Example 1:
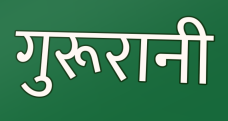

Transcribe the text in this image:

गुरूरानी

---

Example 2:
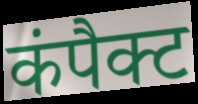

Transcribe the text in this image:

कंपैक्ट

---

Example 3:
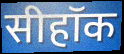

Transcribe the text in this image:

सीहॉक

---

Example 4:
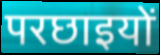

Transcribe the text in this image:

परछाइयों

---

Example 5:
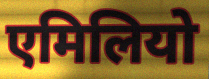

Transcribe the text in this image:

एमिलियो